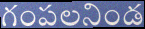
గంపలనిండ